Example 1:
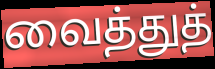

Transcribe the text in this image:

வைத்துத்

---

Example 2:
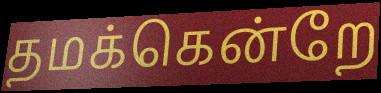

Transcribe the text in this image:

தமக்கென்றே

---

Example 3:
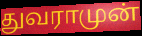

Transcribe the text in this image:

துவராமுன்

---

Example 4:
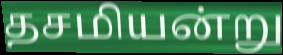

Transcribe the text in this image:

தசமியன்று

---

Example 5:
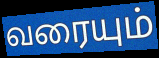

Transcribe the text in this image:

வரையும்